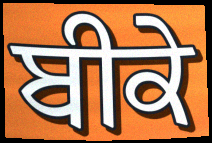
ਬੀਕੇ